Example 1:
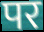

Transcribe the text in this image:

पर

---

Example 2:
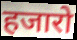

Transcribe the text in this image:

हजारो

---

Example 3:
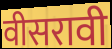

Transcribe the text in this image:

वीसरावी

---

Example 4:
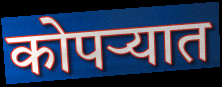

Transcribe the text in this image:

कोपर्‍यात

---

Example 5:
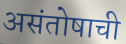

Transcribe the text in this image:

असंतोषाची